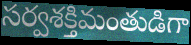
సర్వశక్తిమంతుడిగా